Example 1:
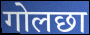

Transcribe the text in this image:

गोलछा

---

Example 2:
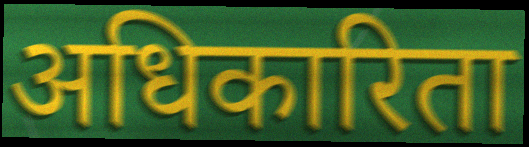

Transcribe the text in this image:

अधिकारिता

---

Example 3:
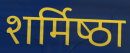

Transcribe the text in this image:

शर्मिष्‍ठा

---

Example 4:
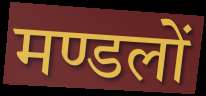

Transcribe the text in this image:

मण्‍डलों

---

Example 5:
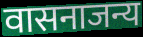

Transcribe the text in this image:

वासनाजन्य